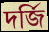
দর্জি